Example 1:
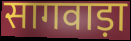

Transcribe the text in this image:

सागवाड़ा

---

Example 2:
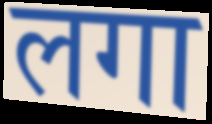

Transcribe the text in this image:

लगा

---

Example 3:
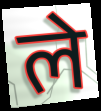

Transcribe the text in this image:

ले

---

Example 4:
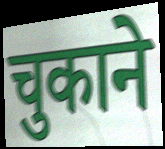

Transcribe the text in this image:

चुकाने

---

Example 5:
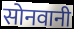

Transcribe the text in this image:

सोनवानी